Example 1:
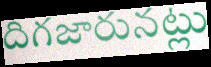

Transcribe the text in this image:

దిగజారునట్లు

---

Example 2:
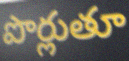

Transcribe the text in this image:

పొర్లుతూ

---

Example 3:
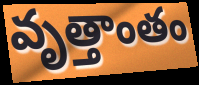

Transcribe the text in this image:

వృత్తాంతం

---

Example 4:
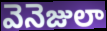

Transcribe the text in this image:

వెనెజులా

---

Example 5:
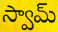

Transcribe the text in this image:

స్వామ్